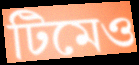
টিমেও